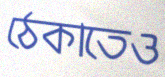
ঠেকাতেও